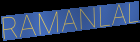
RAMANLAL